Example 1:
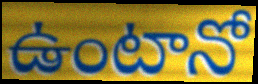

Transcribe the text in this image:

ఉంటానో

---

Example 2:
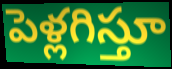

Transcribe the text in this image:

పెళ్లగిస్తూ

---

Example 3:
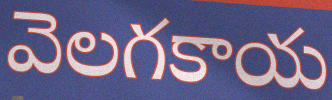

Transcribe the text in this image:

వెలగకాయ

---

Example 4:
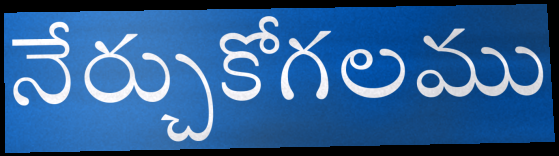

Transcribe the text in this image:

నేర్చుకోగలము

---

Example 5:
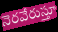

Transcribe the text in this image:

నెరవేరుస్తూ